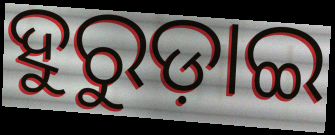
ହୁରୁଡ଼ାଇ